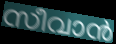
സീവാൻ